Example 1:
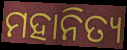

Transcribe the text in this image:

ମହାନିତ୍ୟ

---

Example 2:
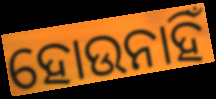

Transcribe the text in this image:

ହୋଉନାହିଁ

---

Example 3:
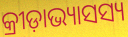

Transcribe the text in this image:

କ୍ରୀଡ଼ାଭ୍ୟାସସ୍ୟ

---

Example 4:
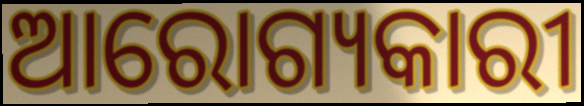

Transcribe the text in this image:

ଆରୋଗ୍ୟକାରୀ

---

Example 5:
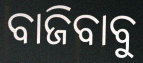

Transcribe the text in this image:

ବାଜିବାବୁ